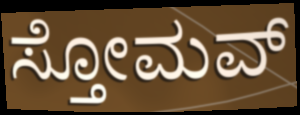
ಸ್ತೋಮವ್